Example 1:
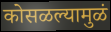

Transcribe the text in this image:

कोसळल्यामुळं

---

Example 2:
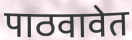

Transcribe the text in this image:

पाठवावेत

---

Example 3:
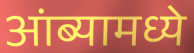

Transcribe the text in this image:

आंब्यामध्ये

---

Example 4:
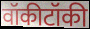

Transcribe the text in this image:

वॉकीटॉकी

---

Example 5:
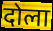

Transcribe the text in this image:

दोला